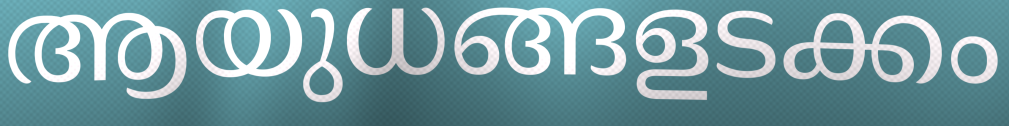
ആയുധങ്ങളടക്കം